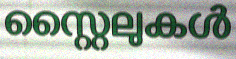
സ്റ്റൈലുകൾ